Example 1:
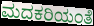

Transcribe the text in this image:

ಮದಕರಿಯಂತೆ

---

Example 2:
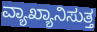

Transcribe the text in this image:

ವ್ಯಾಖ್ಯಾನಿಸುತ್ತ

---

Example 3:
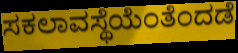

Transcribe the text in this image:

ಸಕಲಾವಸ್ಥೆಯೆಂತೆಂದಡೆ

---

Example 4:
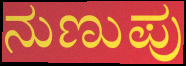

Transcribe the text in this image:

ನುಣುಪು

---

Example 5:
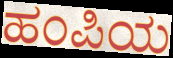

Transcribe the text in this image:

ಹಂಪಿಯ